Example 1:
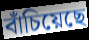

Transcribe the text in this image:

বাঁচিয়েছে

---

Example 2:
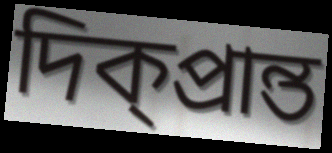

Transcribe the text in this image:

দিক্‌প্রান্ত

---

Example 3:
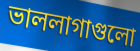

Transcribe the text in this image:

ভাললাগাগুলো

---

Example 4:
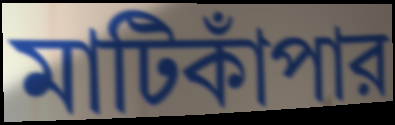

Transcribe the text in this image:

মাটিকাঁপার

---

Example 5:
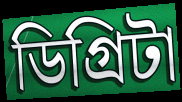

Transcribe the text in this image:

ডিগ্রিটা